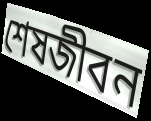
শেষজীবন